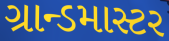
ગ્રાન્ડમાસ્ટર